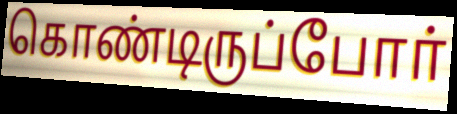
கொண்டிருப்போர்